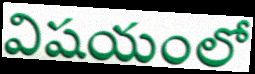
విషయంలో